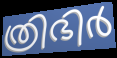
ത്രിഭിർ